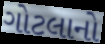
ગોટલાનો